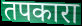
तपकारा